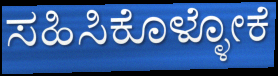
ಸಹಿಸಿಕೊಳ್ಳೋಕೆ